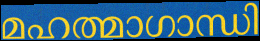
മഹത്മാഗാന്ധി